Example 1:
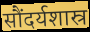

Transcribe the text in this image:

सौंदर्यशास्र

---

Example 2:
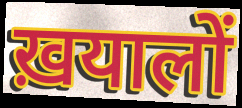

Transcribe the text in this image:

ख़यालों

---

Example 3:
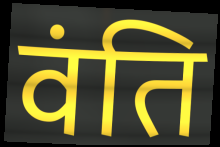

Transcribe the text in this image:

वंति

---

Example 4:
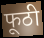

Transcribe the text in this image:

फूठी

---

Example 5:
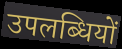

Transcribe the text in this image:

उपलब्धियों